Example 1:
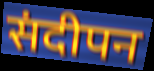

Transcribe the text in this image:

संदीपन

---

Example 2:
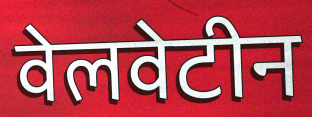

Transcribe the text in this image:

वेलवेटीन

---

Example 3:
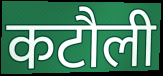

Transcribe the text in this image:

कटौली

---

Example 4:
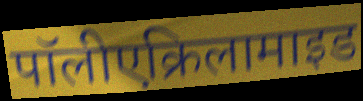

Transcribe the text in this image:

पॉलीएक्रिलामाइड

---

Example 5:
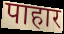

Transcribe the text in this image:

पाहार